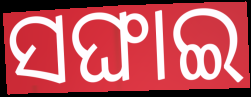
ସଙ୍ଘାଇ